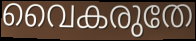
വൈകരുതേ